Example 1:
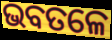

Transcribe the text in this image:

ଭବତଳେ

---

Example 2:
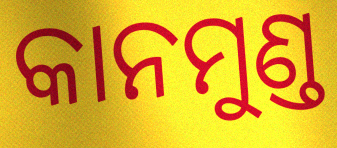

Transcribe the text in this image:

କାନମୁଣ୍ଡ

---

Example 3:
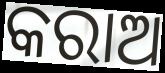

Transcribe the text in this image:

କରାଅ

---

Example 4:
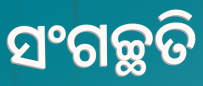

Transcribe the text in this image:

ସଂଗଚ୍ଛତି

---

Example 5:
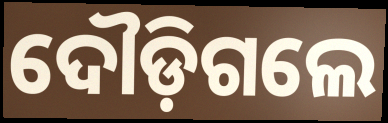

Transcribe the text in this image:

ଦୌଡ଼ିଗଲେ